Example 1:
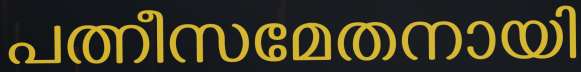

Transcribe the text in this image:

പത്നീസമേതനായി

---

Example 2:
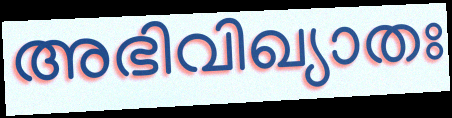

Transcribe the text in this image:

അഭിവിഖ്യാതഃ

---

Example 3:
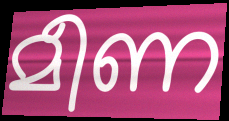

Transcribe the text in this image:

മീണ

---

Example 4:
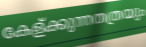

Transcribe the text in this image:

കേള്ക്കുന്നതത്രയും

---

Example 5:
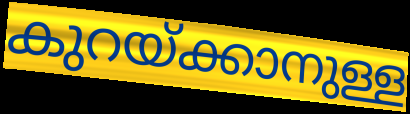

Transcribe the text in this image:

കുറയ്ക്കാനുള്ള